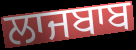
ਲਾਜਬਾਬ